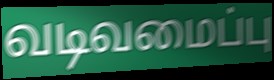
வடிவமைப்பு